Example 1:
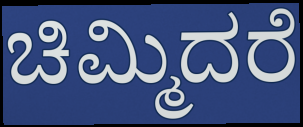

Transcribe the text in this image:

ಚಿಮ್ಮಿದರೆ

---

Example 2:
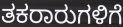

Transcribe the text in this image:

ತಕರಾರುಗಳಿಗೆ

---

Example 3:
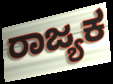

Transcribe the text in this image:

ರಾಜ್ಯಕ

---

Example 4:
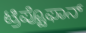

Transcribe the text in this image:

ಟ್ರಿಪ್ಟೊಫಾನ್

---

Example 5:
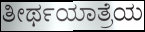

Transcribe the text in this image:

ತೀರ್ಥಯಾತ್ರೆಯ